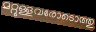
മറ്റുള്ളവരോടൊത്തു